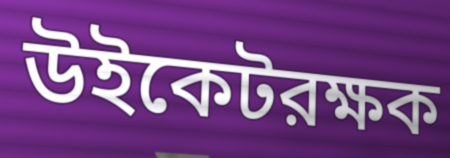
উইকেটরক্ষক